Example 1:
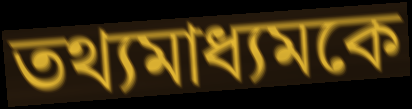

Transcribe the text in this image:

তথ্যমাধ্যমকে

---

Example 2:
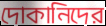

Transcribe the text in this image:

দোকানিদের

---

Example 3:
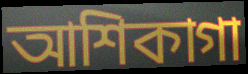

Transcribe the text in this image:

আশিকাগা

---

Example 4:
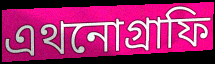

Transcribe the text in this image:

এথনোগ্রাফি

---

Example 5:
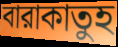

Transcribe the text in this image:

বারাকাতুহ